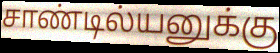
சாண்டில்யனுக்கு